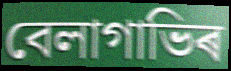
বেলাগাভিৰ